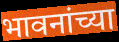
भावनांच्या